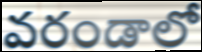
వరండాలో